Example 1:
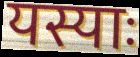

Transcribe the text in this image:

यस्याः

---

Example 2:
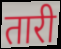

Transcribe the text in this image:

तारी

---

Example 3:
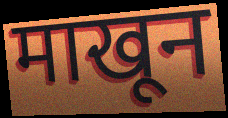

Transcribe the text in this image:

माखून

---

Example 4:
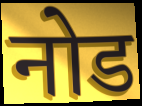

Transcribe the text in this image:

नोड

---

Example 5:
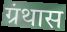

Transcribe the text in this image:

ग्रंथास